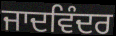
ਜਾਦਵਿੰਦਰ